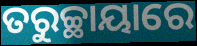
ତରୁଚ୍ଛାୟାରେ